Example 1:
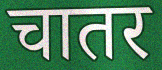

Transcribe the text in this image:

चातर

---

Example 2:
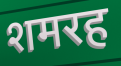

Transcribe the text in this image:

शमरह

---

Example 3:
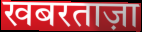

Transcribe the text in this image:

खबरताज़ा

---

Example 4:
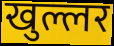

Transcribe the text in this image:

खुल्लर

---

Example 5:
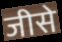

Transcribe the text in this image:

जीसे